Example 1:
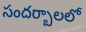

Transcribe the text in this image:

సందర్బాలలో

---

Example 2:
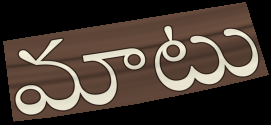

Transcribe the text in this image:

మాటు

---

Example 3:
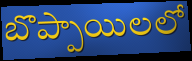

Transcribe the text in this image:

బొప్పాయిలలో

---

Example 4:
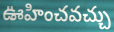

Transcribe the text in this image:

ఊహించవచ్చు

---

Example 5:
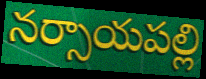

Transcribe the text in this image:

నర్సాయపల్లి